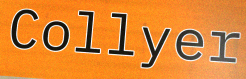
Collyer